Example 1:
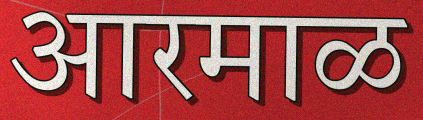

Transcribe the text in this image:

आरमाळ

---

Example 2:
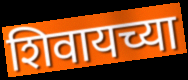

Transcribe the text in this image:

शिवायच्या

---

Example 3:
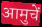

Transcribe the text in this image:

आमुचें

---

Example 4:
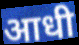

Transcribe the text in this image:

आधी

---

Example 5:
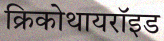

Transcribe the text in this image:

क्रिकोथायरॉइड